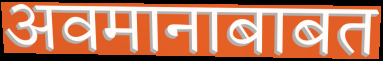
अवमानाबाबत